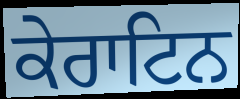
ਕੇਰਾਟਿਨ